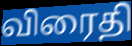
விரைதி